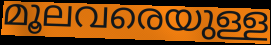
മൂലവരെയുള്ള